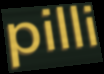
pilli